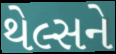
થેલ્સને